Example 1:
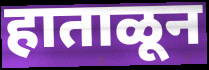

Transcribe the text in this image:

हाताळून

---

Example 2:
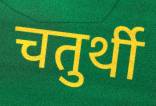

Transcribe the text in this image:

चतुर्थी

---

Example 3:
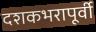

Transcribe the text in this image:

दशकभरापूर्वी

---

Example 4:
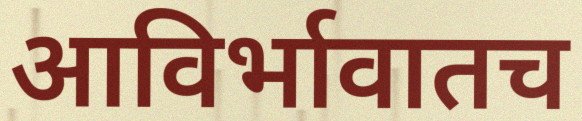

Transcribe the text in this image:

आविर्भावातच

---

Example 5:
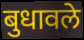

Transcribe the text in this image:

बुधावले